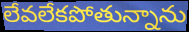
లేవలేకపోతున్నాను